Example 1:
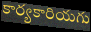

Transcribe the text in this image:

కార్యకారియగు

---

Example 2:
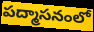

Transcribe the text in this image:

పద్మాసనంలో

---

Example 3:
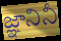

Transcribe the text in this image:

జ్ఞానినీ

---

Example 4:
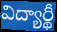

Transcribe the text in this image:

విద్యార్థీ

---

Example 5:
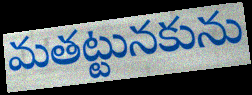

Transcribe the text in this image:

మతట్టునకును